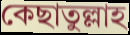
কেছাতুল্লাহ